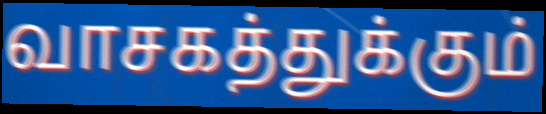
வாசகத்துக்கும்